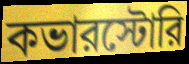
কভারস্টোরি